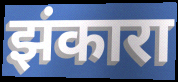
झंकारा